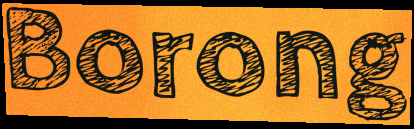
Borong